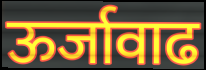
ऊर्जावाढ